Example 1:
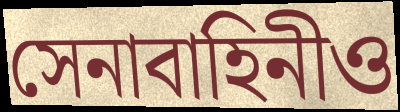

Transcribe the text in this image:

সেনাবাহিনীও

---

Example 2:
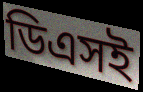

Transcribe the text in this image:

ডিএসই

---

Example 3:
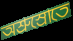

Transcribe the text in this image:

অশ্রুস্রোতে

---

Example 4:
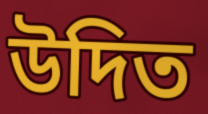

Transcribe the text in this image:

উদিত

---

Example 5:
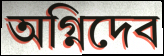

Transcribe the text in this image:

অগ্নিদেব